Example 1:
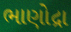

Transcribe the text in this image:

ભાણોદ્રા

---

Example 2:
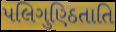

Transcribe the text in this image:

પલિગુણ્ઠિતાતિ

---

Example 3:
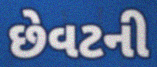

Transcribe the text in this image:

છેવટની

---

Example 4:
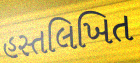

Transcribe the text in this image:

હસ્તલિખિત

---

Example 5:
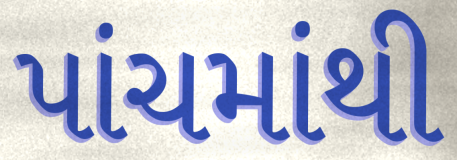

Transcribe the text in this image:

પાંચમાંથી